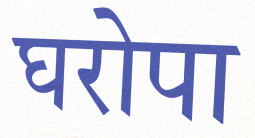
घरोपा